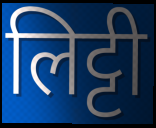
लिट्टी